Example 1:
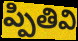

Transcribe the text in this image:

ప్పితివి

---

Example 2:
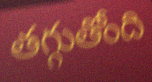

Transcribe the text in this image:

తగ్గుతోంది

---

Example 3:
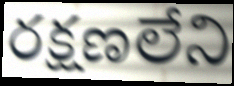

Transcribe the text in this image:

రక్షణలేని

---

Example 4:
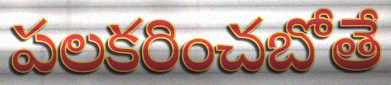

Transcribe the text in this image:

పలకరించబోతే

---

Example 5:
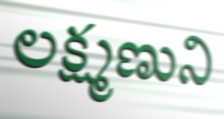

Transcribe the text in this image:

లక్ష్మణుని